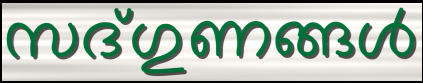
സദ്ഗുണങ്ങൾ